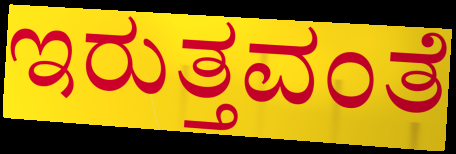
ಇರುತ್ತವಂತೆ